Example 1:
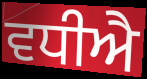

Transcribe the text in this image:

ਵਧੀਐ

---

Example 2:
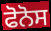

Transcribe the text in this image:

ਫੋਨੋਸ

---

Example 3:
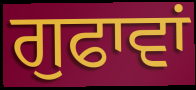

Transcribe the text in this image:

ਗੁਫਾਵਾਂ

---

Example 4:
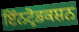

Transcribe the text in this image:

ਇੰਨਟ੍ਰੋਡਕਸ਼ਨ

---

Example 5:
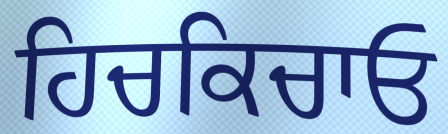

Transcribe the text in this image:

ਹਿਚਕਿਚਾਓ